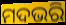
ମଦଭରି